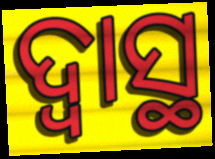
ଦ୍ୱାସ୍ଥ